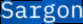
Sargon